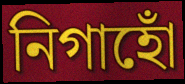
নিগাহোঁ